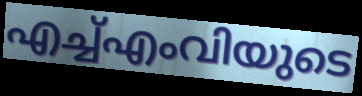
എച്ച്എംവിയുടെ